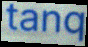
tanq